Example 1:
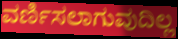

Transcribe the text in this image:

ವರ್ಣಿಸಲಾಗುವುದಿಲ್ಲ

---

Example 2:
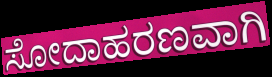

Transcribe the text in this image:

ಸೋದಾಹರಣವಾಗಿ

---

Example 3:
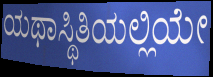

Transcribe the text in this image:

ಯಥಾಸ್ಥಿತಿಯಲ್ಲಿಯೇ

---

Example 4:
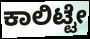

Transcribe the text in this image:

ಕಾಲಿಟ್ಟೇ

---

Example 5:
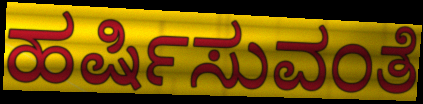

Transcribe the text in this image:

ಹರ್ಷಿಸುವಂತೆ